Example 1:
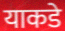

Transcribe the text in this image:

याकडे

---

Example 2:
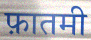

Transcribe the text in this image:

फ़ातमी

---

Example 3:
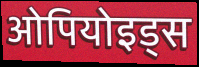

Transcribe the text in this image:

ओपियोइड्स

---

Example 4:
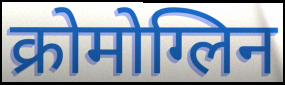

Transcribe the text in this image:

क्रोमोग्लिन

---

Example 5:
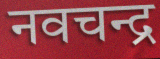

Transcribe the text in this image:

नवचन्द्र